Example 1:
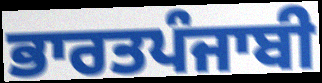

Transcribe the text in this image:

ਭਾਰਤਪੰਜਾਬੀ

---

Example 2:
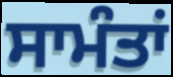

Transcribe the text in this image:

ਸਾਮੰਤਾਂ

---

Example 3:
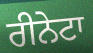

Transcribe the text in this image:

ਰੀਨੇਟਾ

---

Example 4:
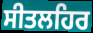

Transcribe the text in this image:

ਸੀਤਲਹਿਰ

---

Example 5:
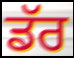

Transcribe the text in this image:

ਡੱਰ